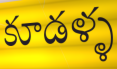
కూడళ్ళ